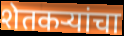
शेतकर्‍यांचा